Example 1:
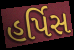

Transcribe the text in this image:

હર્પિસ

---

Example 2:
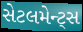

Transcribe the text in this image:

સેટલમેન્ટ્સ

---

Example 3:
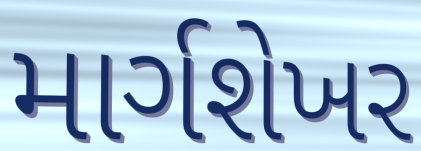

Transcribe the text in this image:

માર્ગશેખર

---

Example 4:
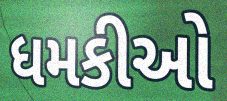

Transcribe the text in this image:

ધમકીઓ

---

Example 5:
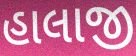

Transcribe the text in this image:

હાલાજી